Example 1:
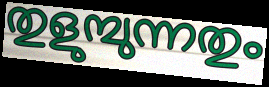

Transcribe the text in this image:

തുളുമ്പുന്നതും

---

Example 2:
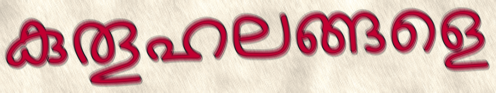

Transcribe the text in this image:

കുതൂഹലങ്ങളെ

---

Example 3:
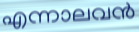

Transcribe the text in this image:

എന്നാലവൻ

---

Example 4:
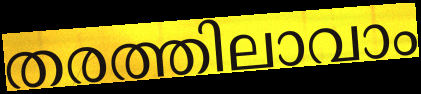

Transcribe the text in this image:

തരത്തിലാവാം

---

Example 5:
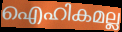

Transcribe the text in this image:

ഐഹികമല്ല